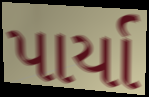
પાર્યા